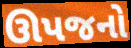
ઊપજનો